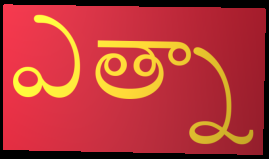
ఎత్నా